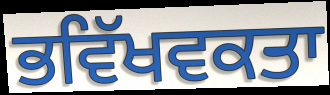
ਭਵਿੱਖਵਕਤਾ